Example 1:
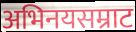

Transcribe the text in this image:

अभिनयसम्राट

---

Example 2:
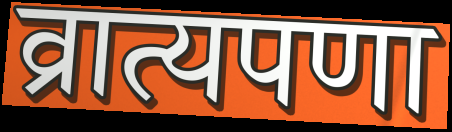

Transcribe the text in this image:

व्रात्यपणा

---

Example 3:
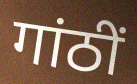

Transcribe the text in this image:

गांठीं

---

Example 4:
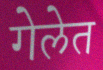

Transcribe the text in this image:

गेलेत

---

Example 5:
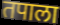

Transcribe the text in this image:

तपाला